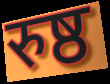
रुष्ठ